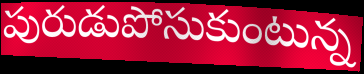
పురుడుపోసుకుంటున్న